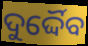
ଦୁର୍ଦ୍ଦୈବ